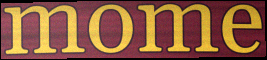
mome